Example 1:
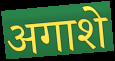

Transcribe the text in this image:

अगाशे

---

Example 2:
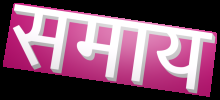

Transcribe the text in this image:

समाय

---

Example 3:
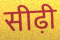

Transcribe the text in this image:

सीढ़ी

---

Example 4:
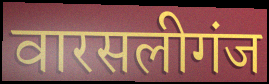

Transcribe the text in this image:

वारसलीगंज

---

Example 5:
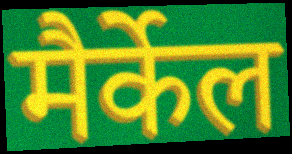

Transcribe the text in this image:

मैर्केल